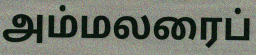
அம்மலரைப்